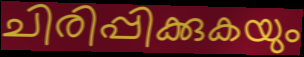
ചിരിപ്പിക്കുകയും